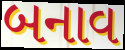
બનાવ